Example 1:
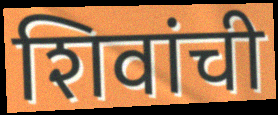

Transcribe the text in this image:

शिवांची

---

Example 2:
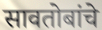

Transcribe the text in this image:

सावतोबांचे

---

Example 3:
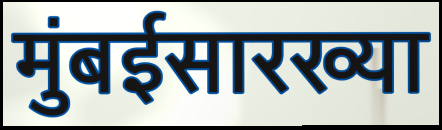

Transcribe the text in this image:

मुंबईसारख्या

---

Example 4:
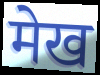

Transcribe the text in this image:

मेख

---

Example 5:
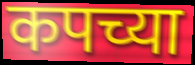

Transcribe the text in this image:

कपच्या